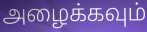
அழைக்கவும்